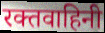
रक्तवाहिनी